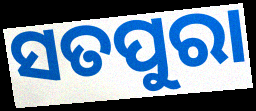
ସତପୁରା